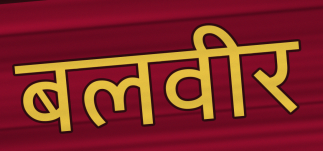
बलवीर